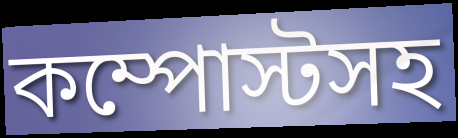
কম্পোস্টসহ